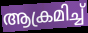
ആക്രമിച്ച്